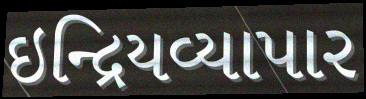
ઇન્દ્રિયવ્યાપાર